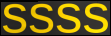
ssss